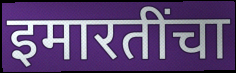
इमारतींचा